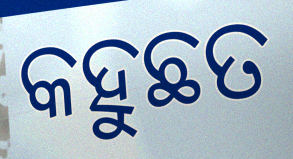
କହୁଛତ